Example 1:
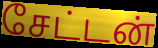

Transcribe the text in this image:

சேட்டன்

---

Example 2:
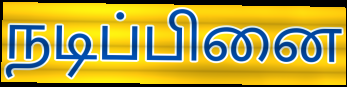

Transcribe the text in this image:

நடிப்பினை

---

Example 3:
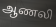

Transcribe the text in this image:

ஆணலி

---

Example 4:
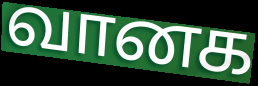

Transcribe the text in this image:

வானக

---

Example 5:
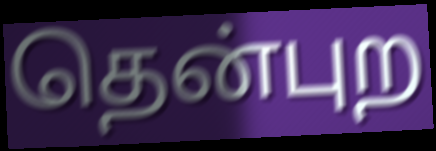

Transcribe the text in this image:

தென்புற